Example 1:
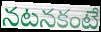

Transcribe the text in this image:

నటనకంటే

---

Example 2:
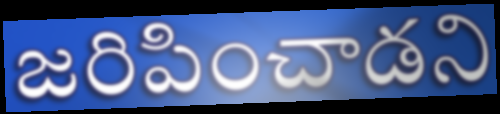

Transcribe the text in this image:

జరిపించాడని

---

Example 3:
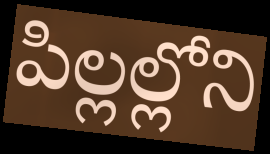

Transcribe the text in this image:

పిల్లల్లోని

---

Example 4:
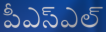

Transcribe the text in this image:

పీఎస్ఎల్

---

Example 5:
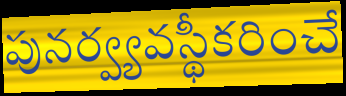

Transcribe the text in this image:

పునర్వ్యవస్థీకరించే